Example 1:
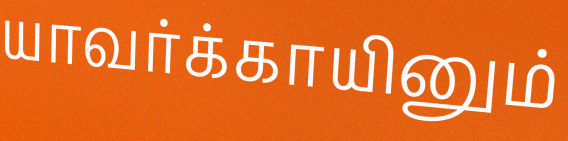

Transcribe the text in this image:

யாவர்க்காயினும்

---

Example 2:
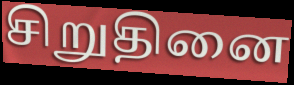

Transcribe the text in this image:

சிறுதினை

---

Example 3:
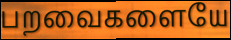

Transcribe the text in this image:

பறவைகளையே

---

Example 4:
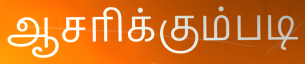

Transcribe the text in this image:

ஆசரிக்கும்படி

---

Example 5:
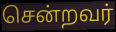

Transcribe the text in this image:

சென்றவர்